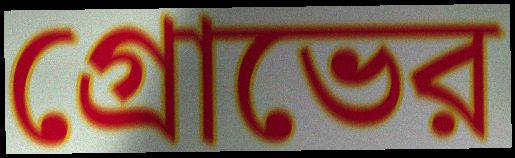
গ্রোভের